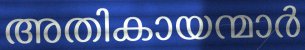
അതികായന്മാർ